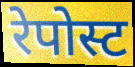
रेपोस्ट